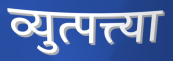
व्युत्पत्त्या